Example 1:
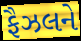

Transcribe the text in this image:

ફૈઝલને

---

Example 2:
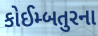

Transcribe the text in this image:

કોઈમ્બતુરના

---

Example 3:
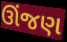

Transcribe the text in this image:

ઊંજણ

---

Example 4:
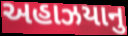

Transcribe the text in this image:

અહાઝયાનુ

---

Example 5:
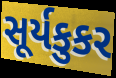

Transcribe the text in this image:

સૂર્યકુકર